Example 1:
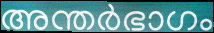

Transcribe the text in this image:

അന്തർഭാഗം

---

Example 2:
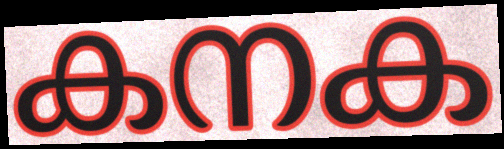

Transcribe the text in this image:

കനക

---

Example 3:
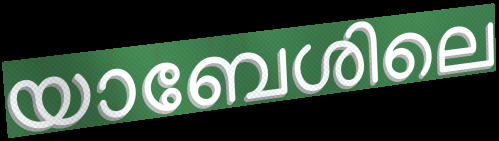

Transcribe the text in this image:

യാബേശിലെ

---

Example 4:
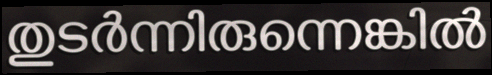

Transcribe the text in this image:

തുടർന്നിരുന്നെങ്കിൽ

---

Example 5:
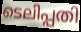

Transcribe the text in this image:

ടെലിപ്പതി